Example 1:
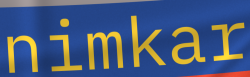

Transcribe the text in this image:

nimkar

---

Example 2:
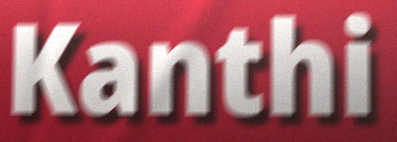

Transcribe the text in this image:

Kanthi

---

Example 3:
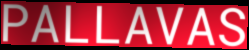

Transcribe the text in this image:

PALLAVAS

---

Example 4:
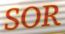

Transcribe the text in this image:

SOR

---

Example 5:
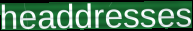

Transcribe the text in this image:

headdresses